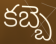
కబ్బె